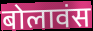
बोलावंस